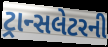
ટ્રાન્સલેટરની